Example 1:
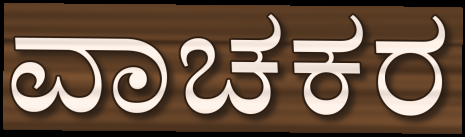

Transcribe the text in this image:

ವಾಚಕರ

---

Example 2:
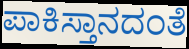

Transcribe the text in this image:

ಪಾಕಿಸ್ತಾನದಂತೆ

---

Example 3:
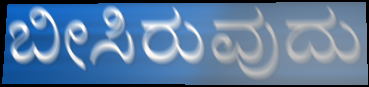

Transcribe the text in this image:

ಬೀಸಿರುವುದು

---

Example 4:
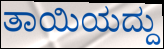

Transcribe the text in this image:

ತಾಯಿಯದ್ದು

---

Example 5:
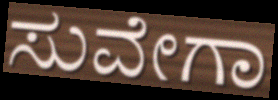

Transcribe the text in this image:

ಸುವೇಗಾ